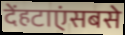
देंहटाएंसबसे